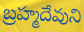
బ్రహ్మదేవుని